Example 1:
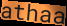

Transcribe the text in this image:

athaa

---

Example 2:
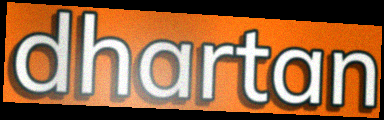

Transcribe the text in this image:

dhartan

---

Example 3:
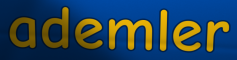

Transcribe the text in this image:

ademler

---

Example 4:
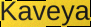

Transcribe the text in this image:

Kaveya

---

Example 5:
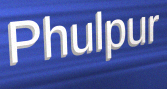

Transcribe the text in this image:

Phulpur